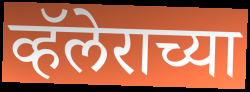
व्हॅलेराच्या